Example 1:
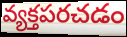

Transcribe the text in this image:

వ్యక్తపరచడం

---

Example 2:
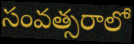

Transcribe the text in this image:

సంవత్సరాలో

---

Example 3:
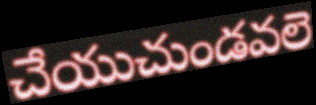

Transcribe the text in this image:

చేయుచుండవలె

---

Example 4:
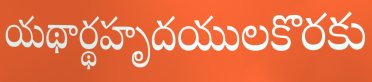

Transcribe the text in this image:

యథార్థహృదయులకొరకు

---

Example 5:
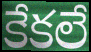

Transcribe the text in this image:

కేకలే